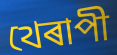
থেৰাপী